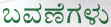
ಬವಣೆಗಳು